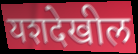
यशदेखील